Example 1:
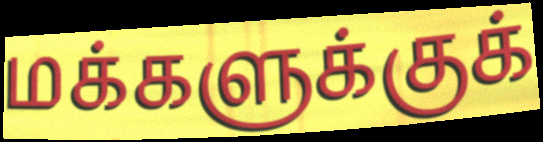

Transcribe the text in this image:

மக்களுக்குக்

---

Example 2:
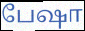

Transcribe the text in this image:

பேஷா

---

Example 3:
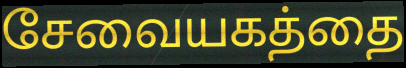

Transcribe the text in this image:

சேவையகத்தை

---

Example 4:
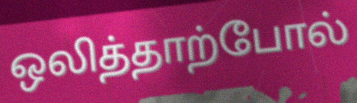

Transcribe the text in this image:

ஒலித்தாற்போல்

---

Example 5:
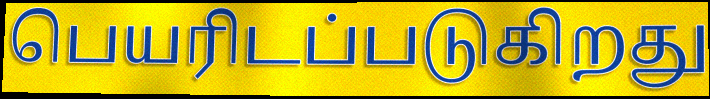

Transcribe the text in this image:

பெயரிடப்படுகிறது